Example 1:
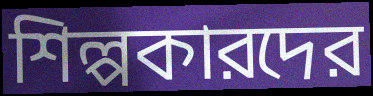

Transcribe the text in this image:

শিল্পকারদের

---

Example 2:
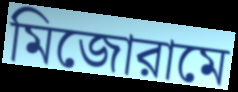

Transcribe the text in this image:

মিজোরামে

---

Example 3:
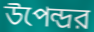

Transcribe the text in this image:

উপেন্দ্রর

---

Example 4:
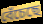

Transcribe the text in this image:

বেঁচেছে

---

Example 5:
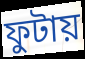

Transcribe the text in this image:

ফুটায়